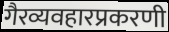
गैरव्यवहारप्रकरणी